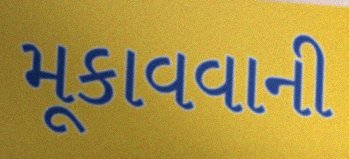
મૂકાવવાની